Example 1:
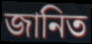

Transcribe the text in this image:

জানিত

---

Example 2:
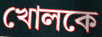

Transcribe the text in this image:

খোলকে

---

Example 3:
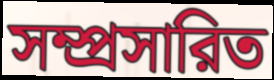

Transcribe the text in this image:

সম্প্রসারিত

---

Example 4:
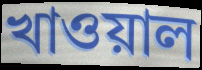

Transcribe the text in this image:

খাওয়াল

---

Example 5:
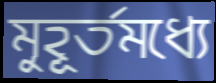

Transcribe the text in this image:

মুহূর্তমধ্যে